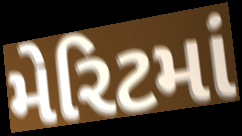
મેરિટમાં